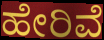
ಹೇರಿವೆ